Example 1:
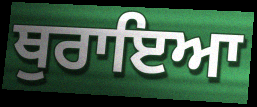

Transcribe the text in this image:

ਥੁਰਾਇਆ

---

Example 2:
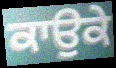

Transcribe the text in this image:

ਕਾਉਕੇ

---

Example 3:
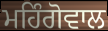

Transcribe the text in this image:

ਮਹਿੰਗੋਵਾਲ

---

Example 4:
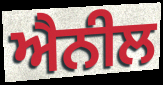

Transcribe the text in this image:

ਐਨੀਲ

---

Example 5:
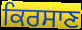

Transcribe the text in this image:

ਕਿਰਸਾਣ